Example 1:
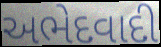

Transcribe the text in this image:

અભેદવાદી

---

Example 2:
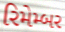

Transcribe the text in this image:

રિમેમ્બર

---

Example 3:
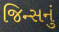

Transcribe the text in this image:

જિન્સનું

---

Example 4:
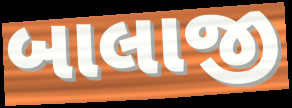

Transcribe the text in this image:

બાલાજી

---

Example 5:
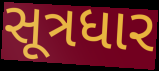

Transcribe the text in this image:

સૂત્રધાર